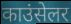
काउंसेलर